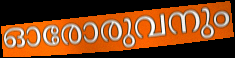
ഓരോരുവനും